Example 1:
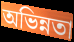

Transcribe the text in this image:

অভিন্নতা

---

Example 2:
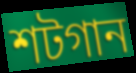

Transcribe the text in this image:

শটগান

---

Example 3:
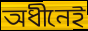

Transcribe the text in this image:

অধীনেই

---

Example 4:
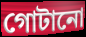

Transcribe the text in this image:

গোটানো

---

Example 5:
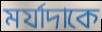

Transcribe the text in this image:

মর্যাদাকে